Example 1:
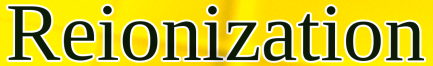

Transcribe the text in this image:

Reionization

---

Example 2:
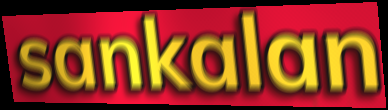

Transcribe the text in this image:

sankalan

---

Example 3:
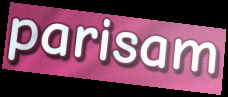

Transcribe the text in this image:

parisam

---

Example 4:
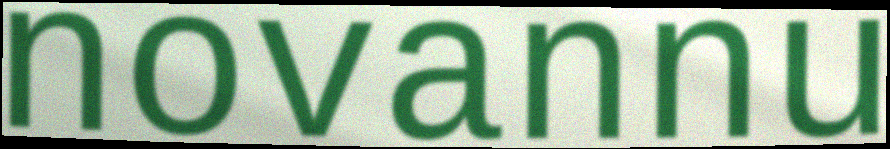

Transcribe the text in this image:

novannu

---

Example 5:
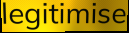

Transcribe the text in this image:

legitimise